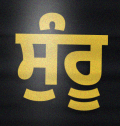
ਸੁੰਰੂ